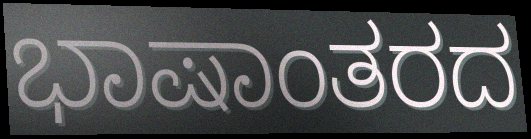
ಭಾಷಾಂತರದ